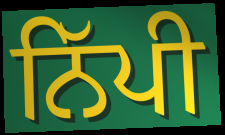
ਨਿੱਪੀ